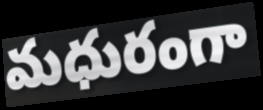
మధురంగా